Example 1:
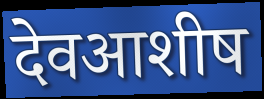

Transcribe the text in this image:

देवआशीष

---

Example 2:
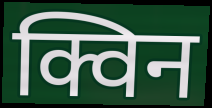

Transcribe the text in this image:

क्विन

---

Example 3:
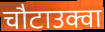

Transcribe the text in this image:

चौटाउक्वा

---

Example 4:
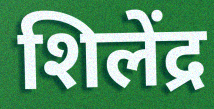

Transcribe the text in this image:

शिलेंद्र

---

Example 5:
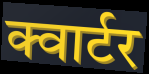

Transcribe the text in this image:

क्‍वार्टर